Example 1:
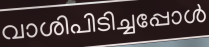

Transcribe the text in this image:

വാശിപിടിച്ചപ്പോൾ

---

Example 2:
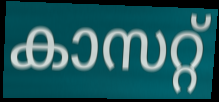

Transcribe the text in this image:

കാസറ്റ്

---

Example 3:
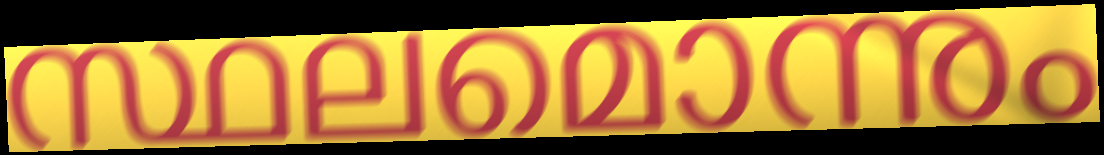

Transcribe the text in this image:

സ്ഥലമൊന്നും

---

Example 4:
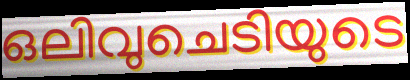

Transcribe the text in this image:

ഒലിവുചെടിയുടെ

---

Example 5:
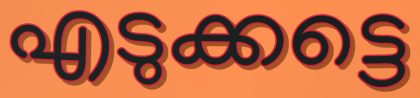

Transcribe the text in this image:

എടുക്കട്ടെ